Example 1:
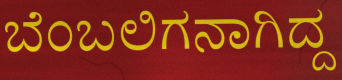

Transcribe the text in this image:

ಬೆಂಬಲಿಗನಾಗಿದ್ದ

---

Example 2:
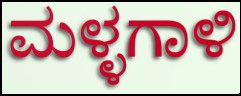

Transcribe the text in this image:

ಮಳ್ಳಗಾಳಿ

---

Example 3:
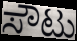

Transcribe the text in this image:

ಸೌಟು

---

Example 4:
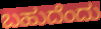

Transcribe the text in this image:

ಬಹುದೆಂದು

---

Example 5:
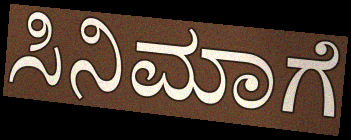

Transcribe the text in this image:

ಸಿನಿಮಾಗೆ